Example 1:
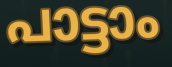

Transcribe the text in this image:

പാട്ടാം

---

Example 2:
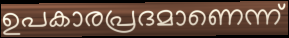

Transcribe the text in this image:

ഉപകാരപ്രദമാണെന്ന്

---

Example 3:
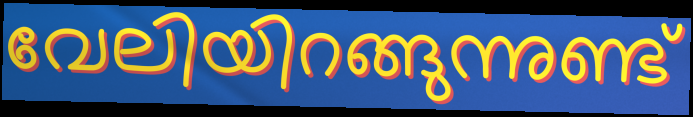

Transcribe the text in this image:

വേലിയിറങ്ങുന്നുണ്ട്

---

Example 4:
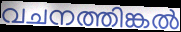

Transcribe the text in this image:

വചനത്തിങ്കൽ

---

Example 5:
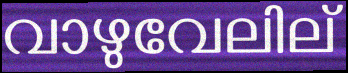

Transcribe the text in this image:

വാഴുവേലില്